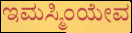
ಇಮಸ್ಮಿಂಯೇವ